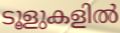
ടൂളുകളിൽ